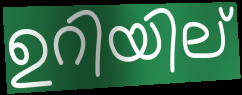
ഉറിയില്